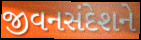
જીવનસંદેશને